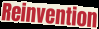
Reinvention